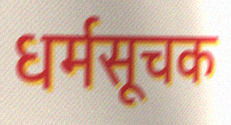
धर्मसूचक